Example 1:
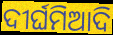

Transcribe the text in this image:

ଦୀର୍ଘମିଆଦି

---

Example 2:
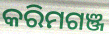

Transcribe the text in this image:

କରିମଗଞ୍ଜ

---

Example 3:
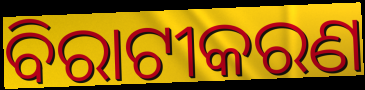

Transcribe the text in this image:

ବିରାଟୀକରଣ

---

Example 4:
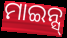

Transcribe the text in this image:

ମାଇନ୍ସ୍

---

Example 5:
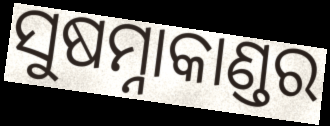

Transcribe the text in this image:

ସୁଷମ୍ନାକାଣ୍ଡର